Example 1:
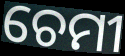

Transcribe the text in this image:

ଚେମୀ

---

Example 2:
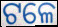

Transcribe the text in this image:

ଟଳେ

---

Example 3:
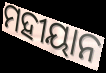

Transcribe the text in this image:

ମହୀୟାନ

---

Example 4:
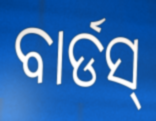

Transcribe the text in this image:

ବାର୍ଡସ୍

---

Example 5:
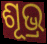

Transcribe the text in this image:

ଶୂଭ୍ର